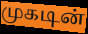
முகடின்